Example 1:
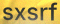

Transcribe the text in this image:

sxsrf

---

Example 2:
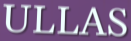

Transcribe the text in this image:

ULLAS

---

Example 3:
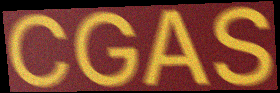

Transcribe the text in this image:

CGAS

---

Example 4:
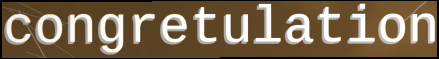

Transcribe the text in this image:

congretulation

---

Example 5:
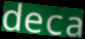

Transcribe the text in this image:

deca